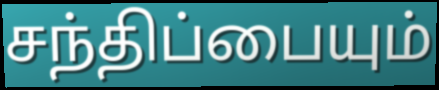
சந்திப்பையும்